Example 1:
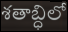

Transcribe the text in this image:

శతాబ్ధిలో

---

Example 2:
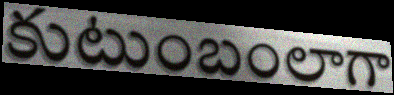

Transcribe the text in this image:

కుటుంబంలాగా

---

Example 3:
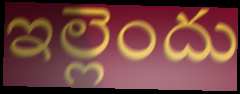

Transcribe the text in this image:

ఇల్లెందు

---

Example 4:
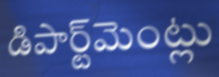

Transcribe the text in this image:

డిపార్ట్‌మెంట్లు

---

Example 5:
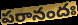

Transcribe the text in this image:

పరానందః